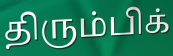
திரும்பிக்